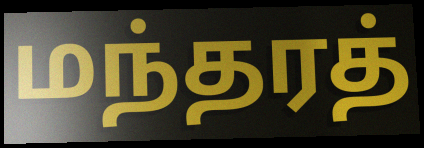
மந்தரத்